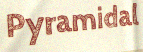
Pyramidal